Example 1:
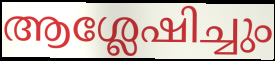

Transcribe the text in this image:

ആശ്ലേഷിച്ചും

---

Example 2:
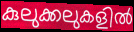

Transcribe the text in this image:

കുലുക്കലുകളിൽ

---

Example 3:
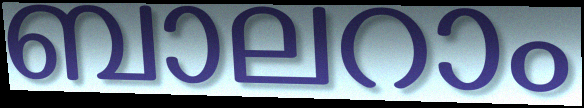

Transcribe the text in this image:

ബാലറാം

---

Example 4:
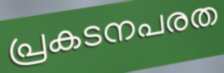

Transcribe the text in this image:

പ്രകടനപരത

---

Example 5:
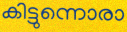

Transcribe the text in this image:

കിട്ടുന്നൊരാ